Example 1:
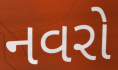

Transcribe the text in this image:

નવરો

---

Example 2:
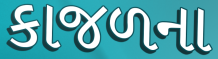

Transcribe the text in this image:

કાજળના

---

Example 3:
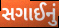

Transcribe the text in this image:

સગાઈનું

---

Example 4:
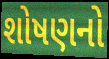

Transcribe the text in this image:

શોષણનો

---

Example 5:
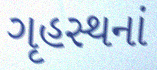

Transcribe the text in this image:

ગૃહસ્થનાં